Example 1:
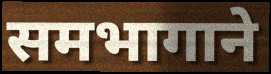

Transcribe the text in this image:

समभागाने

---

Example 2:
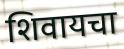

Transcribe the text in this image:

शिवायचा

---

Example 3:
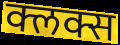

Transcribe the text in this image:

क्लक्स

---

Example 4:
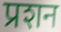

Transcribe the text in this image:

प्रशन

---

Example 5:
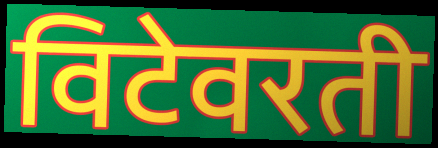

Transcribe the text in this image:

विटेवरती